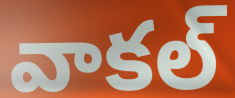
వాకల్